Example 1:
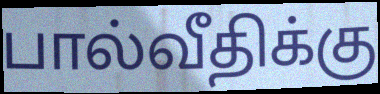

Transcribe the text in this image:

பால்வீதிக்கு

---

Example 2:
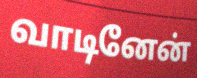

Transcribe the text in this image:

வாடினேன்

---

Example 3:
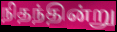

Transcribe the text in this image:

நிதந்தின்று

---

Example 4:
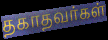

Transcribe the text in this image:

தகாதவர்கள்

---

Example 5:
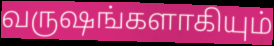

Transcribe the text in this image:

வருஷங்களாகியும்